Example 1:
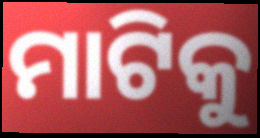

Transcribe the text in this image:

ମାଟିକୁ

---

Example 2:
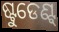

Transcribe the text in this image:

ଷ୍ଟୁଡେଣ୍ଟ୍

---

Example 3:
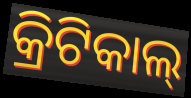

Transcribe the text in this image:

କ୍ରିଟିକାଲ୍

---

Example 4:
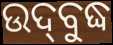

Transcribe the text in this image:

ଉଦ୍‌ବୁଦ୍ଧ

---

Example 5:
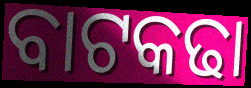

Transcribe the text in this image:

ବାଟକଢା